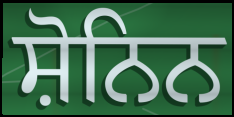
ਸ਼ੋਨਿਨ